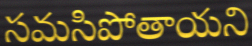
సమసిపోతాయని